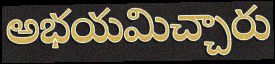
అభయమిచ్చారు